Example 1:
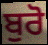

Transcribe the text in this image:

ਬੁਰੋ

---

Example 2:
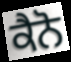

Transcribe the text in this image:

ਕੈਨੋ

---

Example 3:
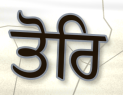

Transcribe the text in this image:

ਤੋਰਿ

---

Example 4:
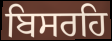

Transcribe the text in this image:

ਬਿਸਰਹਿ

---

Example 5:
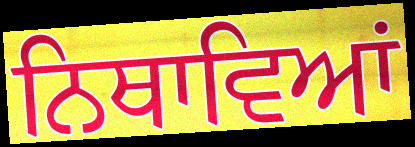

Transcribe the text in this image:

ਨਿਥਾਵਿਆਂ